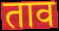
ताव